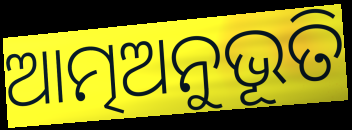
ଆତ୍ମଅନୁଭୂତି